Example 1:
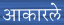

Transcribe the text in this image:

आकारले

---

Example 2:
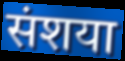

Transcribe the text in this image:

संशया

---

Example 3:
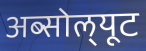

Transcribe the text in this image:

अब्सोल्यूट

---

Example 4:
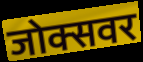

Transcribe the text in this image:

जोक्सवर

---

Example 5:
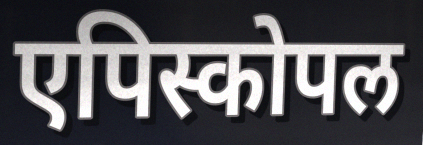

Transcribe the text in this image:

एपिस्कोपल